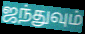
ஜந்துவும்